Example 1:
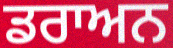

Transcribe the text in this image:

ਡਰਾਅਨ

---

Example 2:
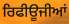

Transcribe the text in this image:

ਰਿਫੀਊਜੀਆਂ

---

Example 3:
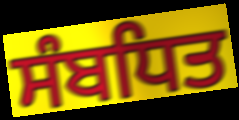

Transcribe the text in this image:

ਸੰਬਧਿਤ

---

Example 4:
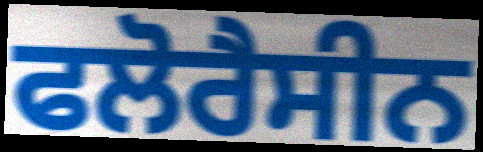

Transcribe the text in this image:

ਫਲੋਰੈਸੀਨ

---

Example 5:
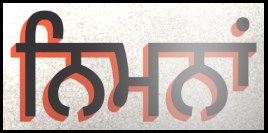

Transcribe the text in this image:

ਨਿਮਨਾਂ